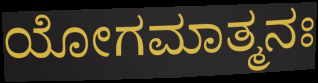
ಯೋಗಮಾತ್ಮನಃ